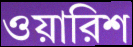
ওয়ারিশ